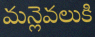
మన్లెవలుకి